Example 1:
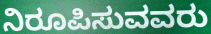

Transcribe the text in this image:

ನಿರೂಪಿಸುವವರು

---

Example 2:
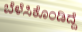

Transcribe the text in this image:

ಬೆಳೆಸಿಕೊಂಡಿದ್ದೆ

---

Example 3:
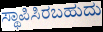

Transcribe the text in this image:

ಸ್ಥಾಪಿಸಿರಬಹುದು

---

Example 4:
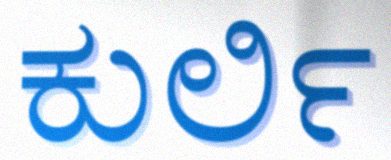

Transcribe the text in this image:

ಕುರ್ಲಿ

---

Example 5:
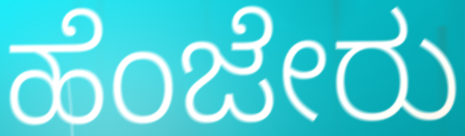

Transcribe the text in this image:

ಹೆಂಜೇರು